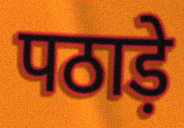
पठाड़े